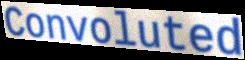
Convoluted